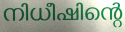
നിധീഷിന്റെ